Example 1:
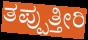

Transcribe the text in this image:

ತಪ್ಪುತ್ತೀರಿ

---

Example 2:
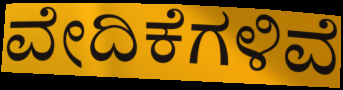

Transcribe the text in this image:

ವೇದಿಕೆಗಳಿವೆ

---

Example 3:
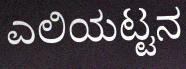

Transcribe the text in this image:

ಎಲಿಯಟ್ಟನ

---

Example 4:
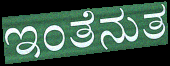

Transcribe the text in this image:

ಇಂತೆನುತ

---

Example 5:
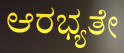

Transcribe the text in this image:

ಆರಭ್ಯತೇ